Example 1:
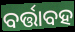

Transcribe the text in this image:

ବର୍ତ୍ତାବହ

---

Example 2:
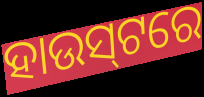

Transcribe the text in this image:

ହାଉସ୍‌ଟରେ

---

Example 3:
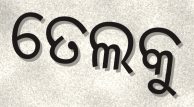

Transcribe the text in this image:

ତେଲକୁ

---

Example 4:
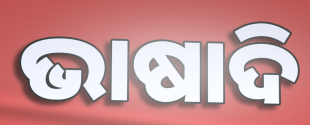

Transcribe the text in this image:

ଭାଷାଦି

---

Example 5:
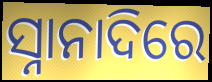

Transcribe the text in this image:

ସ୍ନାନାଦିରେ